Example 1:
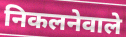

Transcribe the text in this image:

निकलनेवाले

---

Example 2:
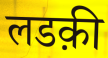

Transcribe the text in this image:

लडक़ी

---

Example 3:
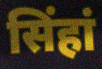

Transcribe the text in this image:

सिंहां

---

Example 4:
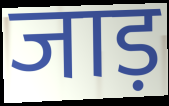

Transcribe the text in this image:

जाड़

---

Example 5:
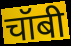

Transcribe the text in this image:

चॉबी